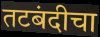
तटबंदीचा